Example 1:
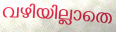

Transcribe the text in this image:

വഴിയില്ലാതെ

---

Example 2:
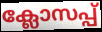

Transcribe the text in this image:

ക്ലോസപ്പ്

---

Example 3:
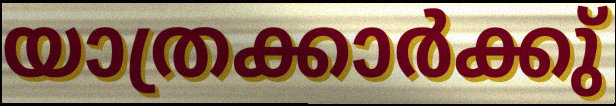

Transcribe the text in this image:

യാത്രക്കാർക്കു്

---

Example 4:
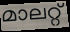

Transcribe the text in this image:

മാലറ്റ്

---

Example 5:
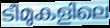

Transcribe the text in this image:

ടീമുകളിലെ